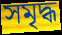
সমৃদ্ধ